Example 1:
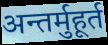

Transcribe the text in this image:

अन्तर्मुहूर्त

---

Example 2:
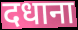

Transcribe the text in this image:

दधाना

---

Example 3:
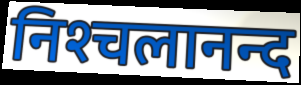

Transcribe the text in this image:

निश्चलानन्द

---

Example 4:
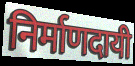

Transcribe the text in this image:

निर्माणदायी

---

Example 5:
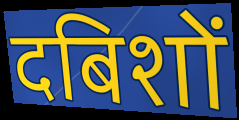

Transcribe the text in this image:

दबिशों